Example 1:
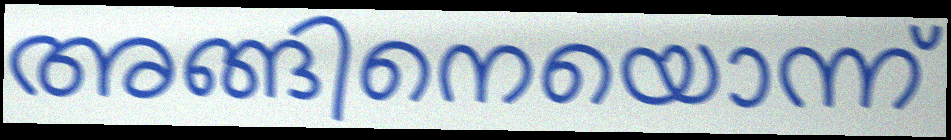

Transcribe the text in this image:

അങ്ങിനെയൊന്ന്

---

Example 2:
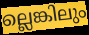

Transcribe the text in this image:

ല്ലെങ്കിലും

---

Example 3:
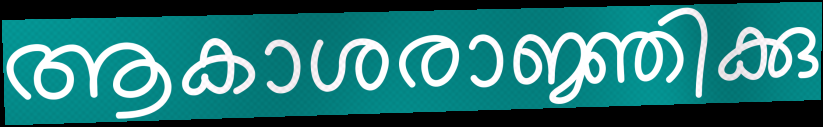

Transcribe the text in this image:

ആകാശരാജ്ഞിക്കു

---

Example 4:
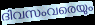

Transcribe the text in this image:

ദിവസംവരെയും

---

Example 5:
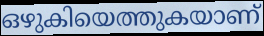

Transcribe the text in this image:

ഒഴുകിയെത്തുകയാണ്